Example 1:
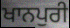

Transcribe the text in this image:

ਖਾਨਪੁਰੀ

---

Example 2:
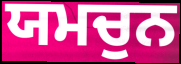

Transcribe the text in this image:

ਯਮਚੁਨ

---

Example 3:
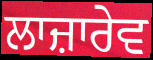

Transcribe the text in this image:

ਲਾਜ਼ਾਰੇਵ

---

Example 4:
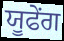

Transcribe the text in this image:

ਯੂਫੇਂਗ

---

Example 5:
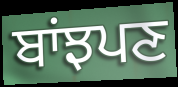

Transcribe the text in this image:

ਬਾਂਝਪਣ